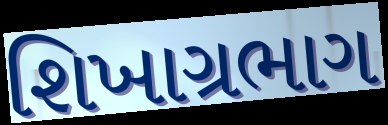
શિખાગ્રભાગ